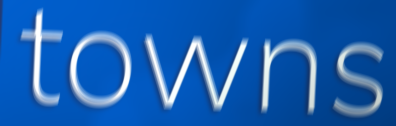
towns